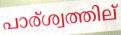
പാര്ശ്വത്തില്